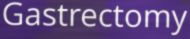
Gastrectomy